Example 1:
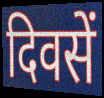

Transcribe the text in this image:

दिवसें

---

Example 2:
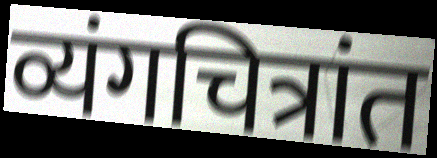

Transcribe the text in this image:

व्यंगचित्रांत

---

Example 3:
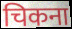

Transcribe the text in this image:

चिकना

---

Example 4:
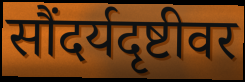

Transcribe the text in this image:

सौंदर्यदृष्टीवर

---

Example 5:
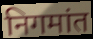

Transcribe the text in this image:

निगमांत